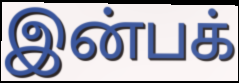
இன்பக்